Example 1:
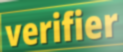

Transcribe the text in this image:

verifier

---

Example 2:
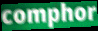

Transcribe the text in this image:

comphor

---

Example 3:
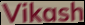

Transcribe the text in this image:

Vikash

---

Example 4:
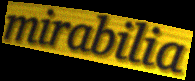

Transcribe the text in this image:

mirabilia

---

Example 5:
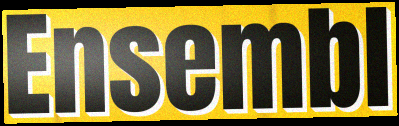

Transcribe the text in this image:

Ensembl